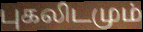
புகலிடமும்